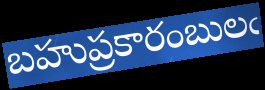
బహుప్రకారంబులఁ